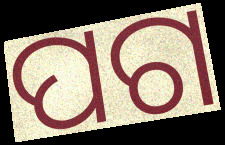
ପଗ